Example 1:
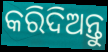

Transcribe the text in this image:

କରିଦିଅନ୍ତୁ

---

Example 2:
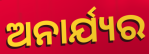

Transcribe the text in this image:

ଅନାର୍ଯ୍ୟର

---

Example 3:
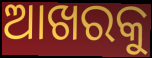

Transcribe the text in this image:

ଆଖରକୁ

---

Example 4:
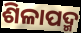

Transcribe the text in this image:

ଶିଳାପଦ୍ମ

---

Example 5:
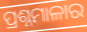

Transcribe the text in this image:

ପ୍ରଶ୍ନମାଳାର